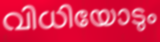
വിധിയോടും